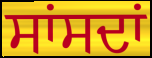
ਸਾਂਸਦਾਂ